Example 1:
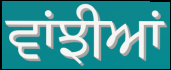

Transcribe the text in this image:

ਵਾਂਝੀਆਂ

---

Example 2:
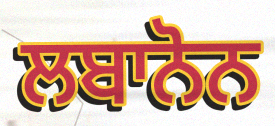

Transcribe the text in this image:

ਲਬਾਨੋਨ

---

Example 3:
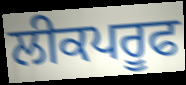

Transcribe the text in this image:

ਲੀਕਪਰੂਫ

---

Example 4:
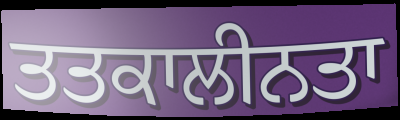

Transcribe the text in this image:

ਤਤਕਾਲੀਨਤਾ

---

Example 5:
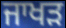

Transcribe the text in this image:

ਜਾਖੜ